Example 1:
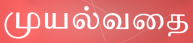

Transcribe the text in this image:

முயல்வதை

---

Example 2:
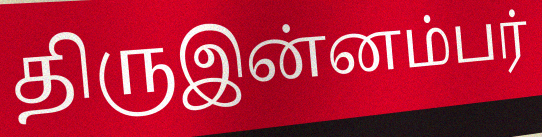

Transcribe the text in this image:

திருஇன்னம்பர்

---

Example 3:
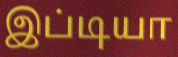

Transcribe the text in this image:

இப்டியா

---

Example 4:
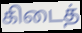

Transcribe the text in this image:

கிடைத்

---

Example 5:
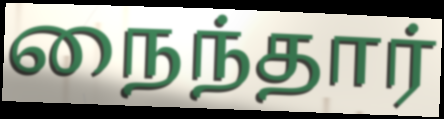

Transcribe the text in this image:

நைந்தார்